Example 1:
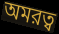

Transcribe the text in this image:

অমরত্ব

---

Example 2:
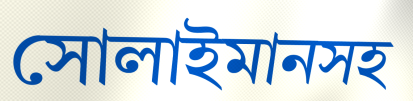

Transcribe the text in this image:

সোলাইমানসহ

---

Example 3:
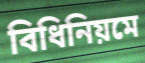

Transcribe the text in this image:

বিধিনিয়মে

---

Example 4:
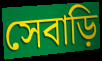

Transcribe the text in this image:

সেবাড়ি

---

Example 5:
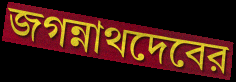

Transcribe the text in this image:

জগন্নাথদেবের